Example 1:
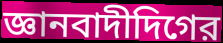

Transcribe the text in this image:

জ্ঞানবাদীদিগের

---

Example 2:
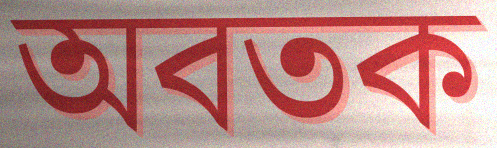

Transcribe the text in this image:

অবতক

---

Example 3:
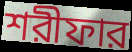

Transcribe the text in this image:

শরীফার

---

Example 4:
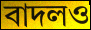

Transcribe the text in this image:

বাদলও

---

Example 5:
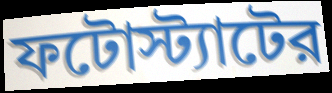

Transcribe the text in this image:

ফটোস্ট্যাটের